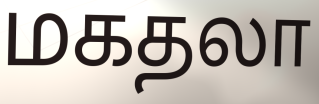
மகதலா